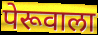
पेरूवाला